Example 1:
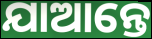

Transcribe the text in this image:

ଯାଆନ୍ତେ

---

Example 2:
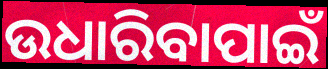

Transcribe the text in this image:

ଉଧାରିବାପାଇଁ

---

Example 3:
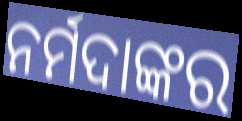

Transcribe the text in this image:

ନର୍ମଦାଙ୍କର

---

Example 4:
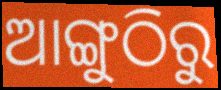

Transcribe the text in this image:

ଆଙ୍ଗୁଠିରୁ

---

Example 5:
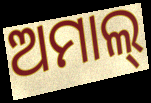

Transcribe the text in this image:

ଅମାଲ୍